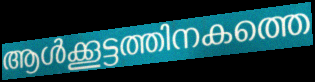
ആൾക്കൂട്ടത്തിനകത്തെ